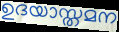
ഉദയാസ്തമന